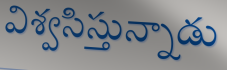
విశ్వసిస్తున్నాడు